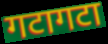
गटागटा